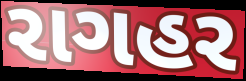
રાગહર